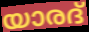
യാരദ്